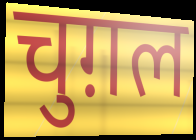
चुग़ल